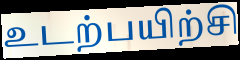
உடற்பயிற்சி